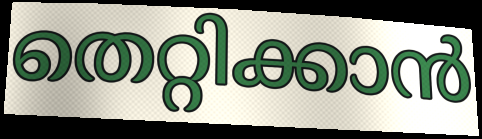
തെറ്റിക്കാൻ